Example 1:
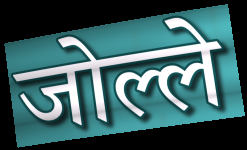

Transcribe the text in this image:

जोल्ले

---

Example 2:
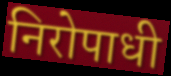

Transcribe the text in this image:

निरोपाधी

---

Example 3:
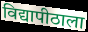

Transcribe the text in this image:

विद्यापीठाला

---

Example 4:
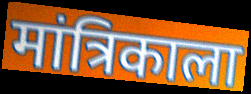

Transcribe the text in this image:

मांत्रिकाला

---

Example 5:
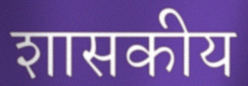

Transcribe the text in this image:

शासकीय